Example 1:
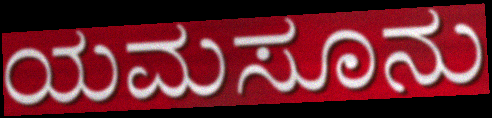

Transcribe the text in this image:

ಯಮಸೂನು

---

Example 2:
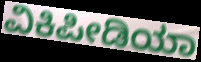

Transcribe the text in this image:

ವಿಕಿಪೀಡಿಯಾ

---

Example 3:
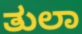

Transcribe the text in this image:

ತುಲಾ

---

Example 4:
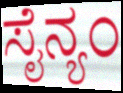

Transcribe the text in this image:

ಸೈನ್ಯಂ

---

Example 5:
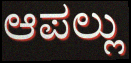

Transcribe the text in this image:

ಆಪಲ್ಲು